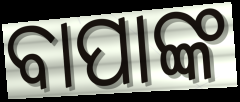
ବାପାଙ୍କ